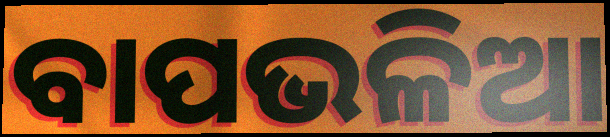
ବାପଭଳିଆ